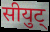
सीयुट्